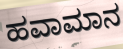
ಹವಾಮಾನ